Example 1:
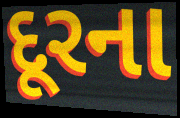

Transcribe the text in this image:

દૂરના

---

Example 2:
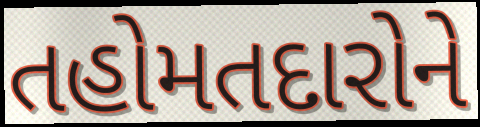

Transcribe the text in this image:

તહોમતદારોને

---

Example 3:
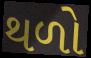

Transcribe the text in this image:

થળો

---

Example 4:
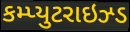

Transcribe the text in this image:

કમ્પ્યુટરાઇઝ્ડ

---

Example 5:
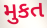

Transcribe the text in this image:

મુકત